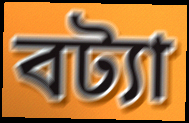
বট্যা